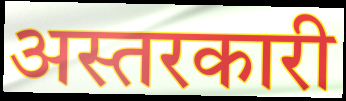
अस्तरकारी